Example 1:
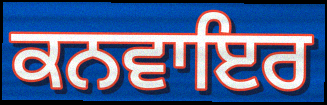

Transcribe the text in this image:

ਕਨਵਾਇਰ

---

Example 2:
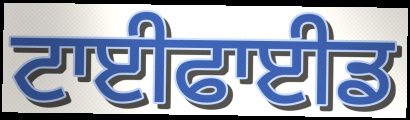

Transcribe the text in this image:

ਟਾਈਫਾਈਡ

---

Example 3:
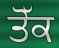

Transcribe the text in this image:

ਤੋੱਕ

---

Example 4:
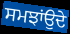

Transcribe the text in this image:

ਸਮਝਾਂਉਦੇ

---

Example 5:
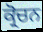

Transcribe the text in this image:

ਕ੍ਰੋਚਨ